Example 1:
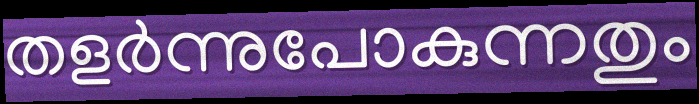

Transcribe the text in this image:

തളർന്നുപോകുന്നതും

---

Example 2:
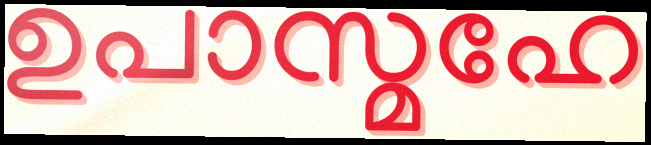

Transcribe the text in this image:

ഉപാസ്മഹേ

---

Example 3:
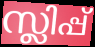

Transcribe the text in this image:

സ്ലിപ്പ്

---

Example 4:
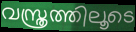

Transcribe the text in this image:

വസ്ത്രത്തിലൂടെ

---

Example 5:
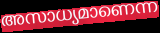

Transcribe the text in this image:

അസാധ്യമാണെന്ന